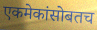
एकमेकांसोबतच